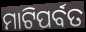
ମାଟିପର୍ବତ